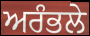
ਅਰੰਭਲੇ